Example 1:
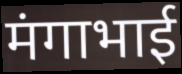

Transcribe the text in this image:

मंगाभाई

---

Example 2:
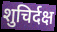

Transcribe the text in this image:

शुचिर्दक्ष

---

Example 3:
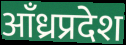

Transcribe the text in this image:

आँध्रप्रदेश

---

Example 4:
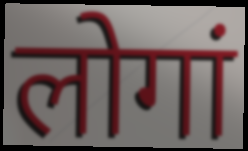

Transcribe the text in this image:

लोगां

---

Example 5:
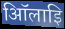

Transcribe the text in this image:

ऑिलाइि